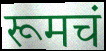
रूमचं